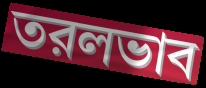
তরলভাব